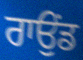
ਰਾਉਂਡ